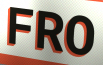
FRO